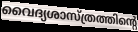
വൈദ്യശാസ്ത്രത്തിന്റെ